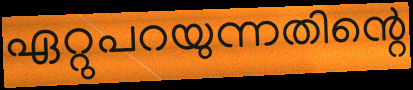
ഏറ്റുപറയുന്നതിന്റെ